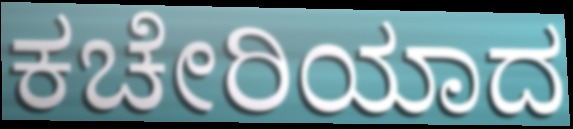
ಕಚೇರಿಯಾದ